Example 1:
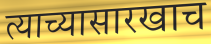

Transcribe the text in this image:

त्याच्यासारखाच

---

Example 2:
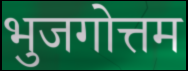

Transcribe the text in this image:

भुजगोत्तम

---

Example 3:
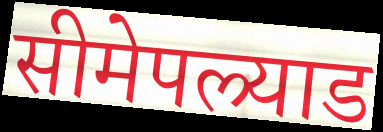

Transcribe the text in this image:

सीमेपल्याड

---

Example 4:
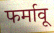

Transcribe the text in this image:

फर्मावू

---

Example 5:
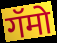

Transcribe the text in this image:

गॅमो